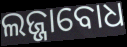
ଲଜ୍ଜାବୋଧ